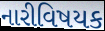
નારીવિષયક